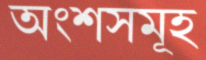
অংশসমূহ